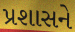
પ્રશાસને